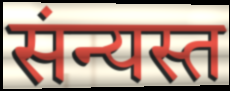
संन्यस्त